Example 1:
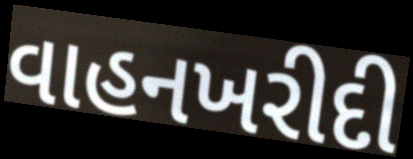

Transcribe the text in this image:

વાહનખરીદી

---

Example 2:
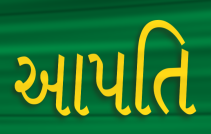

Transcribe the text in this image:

આપતિ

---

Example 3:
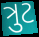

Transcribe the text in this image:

ત્રુટ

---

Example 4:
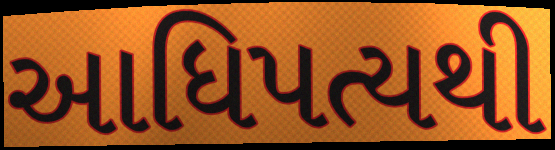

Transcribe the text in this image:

આધિપત્યથી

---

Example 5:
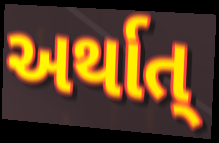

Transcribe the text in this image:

અર્થાત્